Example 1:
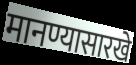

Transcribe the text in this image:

मानण्यासारखे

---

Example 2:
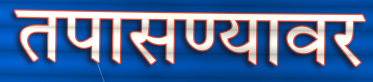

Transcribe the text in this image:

तपासण्यावर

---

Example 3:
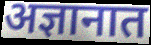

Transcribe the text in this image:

अज्ञानात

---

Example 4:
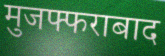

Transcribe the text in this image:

मुजफ्फराबाद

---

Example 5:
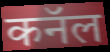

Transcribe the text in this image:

कनॅल